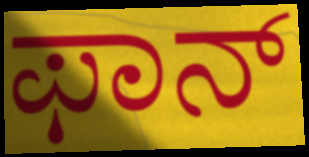
ಫಾನ್